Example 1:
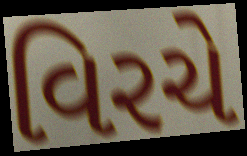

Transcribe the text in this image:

વિરચે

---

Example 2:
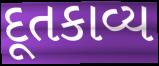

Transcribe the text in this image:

દૂતકાવ્ય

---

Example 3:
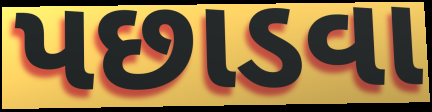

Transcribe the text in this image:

પછાડવા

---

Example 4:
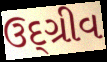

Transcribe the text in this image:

ઉદ્ગ્રીવ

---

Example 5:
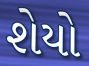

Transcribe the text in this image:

શેયો